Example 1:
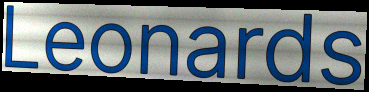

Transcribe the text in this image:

Leonards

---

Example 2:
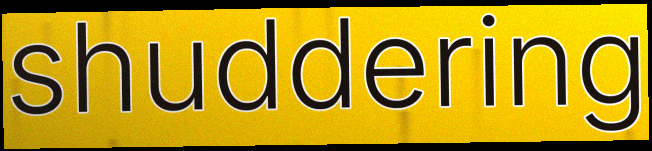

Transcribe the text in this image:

shuddering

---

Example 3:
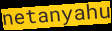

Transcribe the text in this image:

netanyahu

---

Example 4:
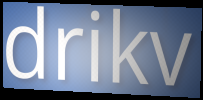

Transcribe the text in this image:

drikv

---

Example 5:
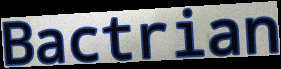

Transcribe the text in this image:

Bactrian